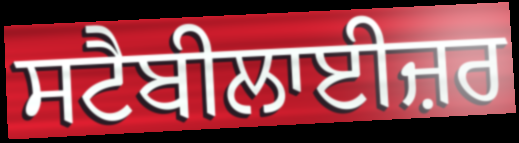
ਸਟੈਬੀਲਾਈਜ਼ਰ